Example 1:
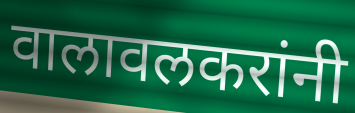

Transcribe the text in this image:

वालावलकरांनी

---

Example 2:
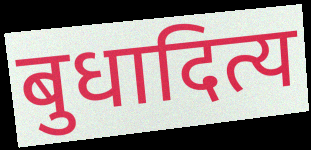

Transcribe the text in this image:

बुधादित्य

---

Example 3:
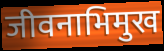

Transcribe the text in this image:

जीवनाभिमुख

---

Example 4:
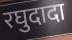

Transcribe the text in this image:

रघुदादा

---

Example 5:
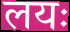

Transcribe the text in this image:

लयः